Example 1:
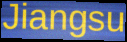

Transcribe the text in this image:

Jiangsu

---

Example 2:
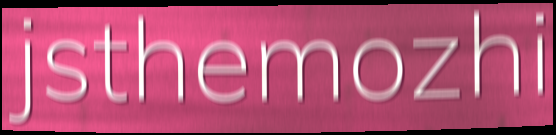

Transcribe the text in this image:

jsthemozhi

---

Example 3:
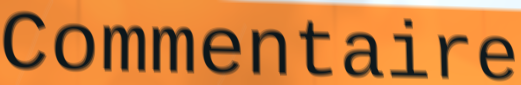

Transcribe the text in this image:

Commentaire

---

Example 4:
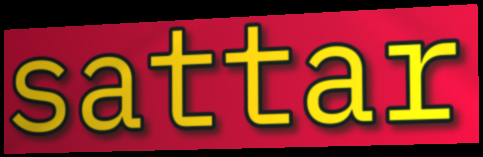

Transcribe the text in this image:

sattar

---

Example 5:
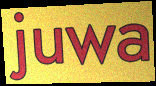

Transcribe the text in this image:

juwa